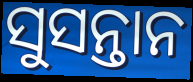
ସୁସନ୍ତାନ